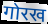
गोरख